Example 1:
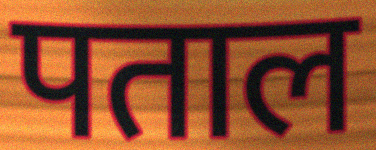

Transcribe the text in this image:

पताल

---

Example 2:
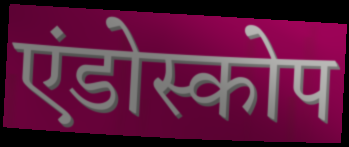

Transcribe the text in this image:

एंडोस्कोप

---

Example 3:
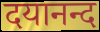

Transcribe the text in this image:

दयानन्द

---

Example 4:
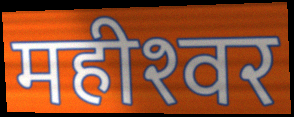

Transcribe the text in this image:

महीश्वर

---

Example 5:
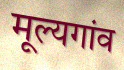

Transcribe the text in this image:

मूल्यगांव